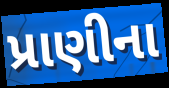
પ્રાણીના